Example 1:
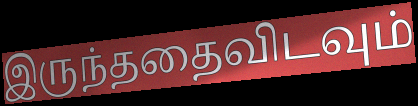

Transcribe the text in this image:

இருந்ததைவிடவும்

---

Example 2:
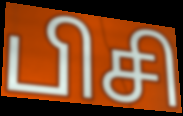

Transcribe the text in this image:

பிசி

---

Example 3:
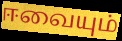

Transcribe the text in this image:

ஈவையும்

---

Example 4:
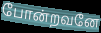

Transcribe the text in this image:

போன்றவனே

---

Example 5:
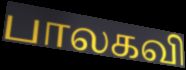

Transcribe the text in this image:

பாலகவி